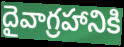
దైవాగ్రహానికి